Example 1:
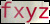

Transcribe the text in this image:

fxyz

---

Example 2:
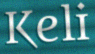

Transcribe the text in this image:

Keli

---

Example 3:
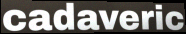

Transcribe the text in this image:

cadaveric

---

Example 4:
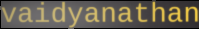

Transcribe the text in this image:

vaidyanathan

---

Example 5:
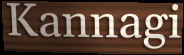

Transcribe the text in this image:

Kannagi